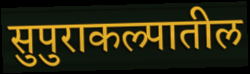
सुपुराकल्पातील